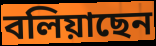
বলিয়াছেন